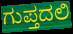
ಗುಪ್ತದಲಿ